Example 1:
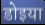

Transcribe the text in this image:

डोइया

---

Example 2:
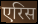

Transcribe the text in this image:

एरिस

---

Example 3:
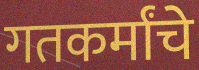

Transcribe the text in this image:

गतकर्मांचे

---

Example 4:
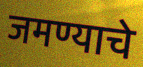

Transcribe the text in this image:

जमण्याचे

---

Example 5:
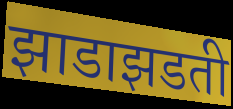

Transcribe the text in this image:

झाडाझडती